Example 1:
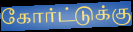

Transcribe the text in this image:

கோர்ட்டுக்கு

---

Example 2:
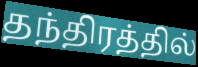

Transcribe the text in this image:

தந்திரத்தில்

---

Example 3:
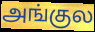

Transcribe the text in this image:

அங்குல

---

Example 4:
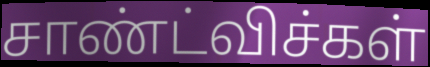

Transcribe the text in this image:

சாண்ட்விச்கள்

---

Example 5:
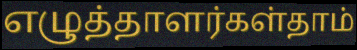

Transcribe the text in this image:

எழுத்தாளர்கள்தாம்